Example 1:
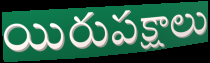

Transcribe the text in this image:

యిరుపక్షాలు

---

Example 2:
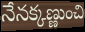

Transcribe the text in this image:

నేనక్కణ్ణుంచి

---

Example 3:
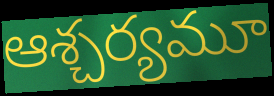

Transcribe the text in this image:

ఆశ్చర్యమూ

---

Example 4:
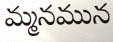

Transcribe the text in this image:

మ్మనమున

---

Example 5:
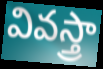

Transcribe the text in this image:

వివస్త్రా